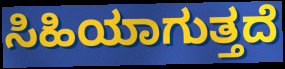
ಸಿಹಿಯಾಗುತ್ತದೆ